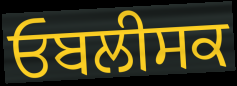
ਓਬਲੀਸਕ